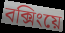
বক্সিংয়ে